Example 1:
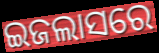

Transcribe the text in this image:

ଇଜଲାସରେ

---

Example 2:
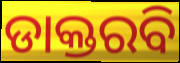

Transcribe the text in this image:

ଡାକ୍ତରବି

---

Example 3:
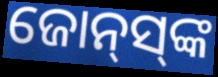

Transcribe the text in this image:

ଜୋନ୍‌ସ୍‌ଙ୍କ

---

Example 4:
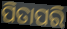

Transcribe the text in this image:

ପିତାପରି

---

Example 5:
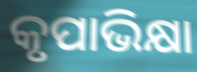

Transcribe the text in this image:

କୃପାଭିକ୍ଷା